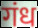
गंध